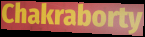
Chakraborty